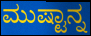
ಮುಷ್ಟಾನ್ನ